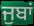
ਜੁਬਾਂ